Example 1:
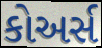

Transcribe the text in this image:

કોઅર્સ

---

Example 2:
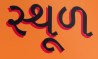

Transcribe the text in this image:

સ્‍થૂળ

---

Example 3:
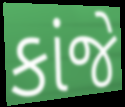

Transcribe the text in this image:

કાંજે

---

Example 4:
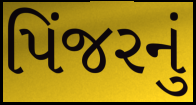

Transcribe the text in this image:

પિંજરનું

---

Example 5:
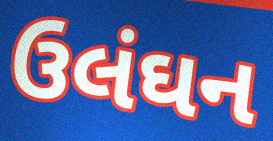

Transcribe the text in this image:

ઉલંઘન